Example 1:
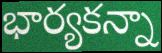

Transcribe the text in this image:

భార్యకన్నా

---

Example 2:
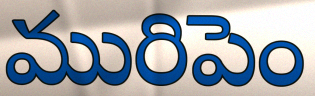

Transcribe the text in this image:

మురిపెం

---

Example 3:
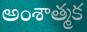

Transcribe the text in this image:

అంశాత్మక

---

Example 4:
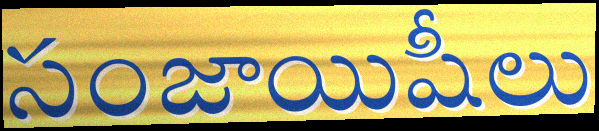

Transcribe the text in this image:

సంజాయిషీలు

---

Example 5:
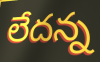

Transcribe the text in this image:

లేదన్న